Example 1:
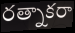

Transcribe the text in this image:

రత్నాకరా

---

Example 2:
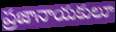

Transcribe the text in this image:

ప్రజానాయకులూ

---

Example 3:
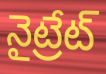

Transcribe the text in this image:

నైట్రేట్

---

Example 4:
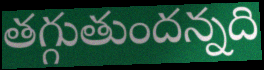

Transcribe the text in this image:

తగ్గుతుందన్నది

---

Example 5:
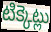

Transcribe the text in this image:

టిక్కెట్లు